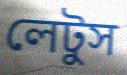
লেটুস